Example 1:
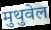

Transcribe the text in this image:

मुथुवेल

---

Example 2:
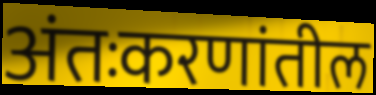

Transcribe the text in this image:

अंतःकरणांतील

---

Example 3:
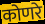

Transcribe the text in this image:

कोणरे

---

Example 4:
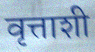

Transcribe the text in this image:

वृत्ताशी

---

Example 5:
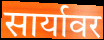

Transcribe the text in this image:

सार्यावर